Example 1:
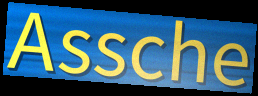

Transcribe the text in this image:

Assche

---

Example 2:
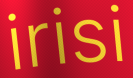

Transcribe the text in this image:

irisi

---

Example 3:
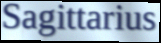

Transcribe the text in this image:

Sagittarius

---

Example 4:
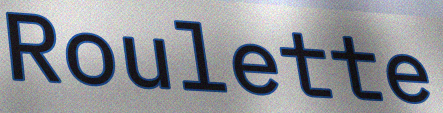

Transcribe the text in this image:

Roulette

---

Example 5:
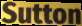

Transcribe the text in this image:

Sutton